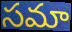
సమా